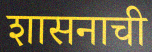
शासनाची